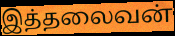
இத்தலைவன்